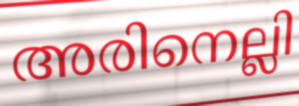
അരിനെല്ലി